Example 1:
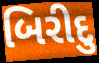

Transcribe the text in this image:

બિરીદુ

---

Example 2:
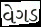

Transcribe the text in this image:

વેગડ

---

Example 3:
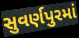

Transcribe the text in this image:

સુવર્ણપુરમાં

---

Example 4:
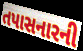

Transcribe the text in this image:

તપાસનારની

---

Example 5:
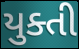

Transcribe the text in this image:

યુક્તી